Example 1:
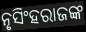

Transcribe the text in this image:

ନୃସିଂହରାଜଙ୍କ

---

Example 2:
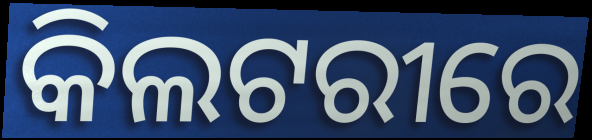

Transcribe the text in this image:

କିଲଟରୀରେ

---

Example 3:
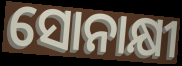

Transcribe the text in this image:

ସୋନାକ୍ଷୀ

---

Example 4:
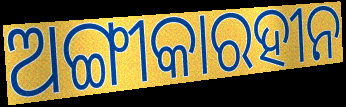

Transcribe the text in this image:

ଅଙ୍ଗୀକାରହୀନ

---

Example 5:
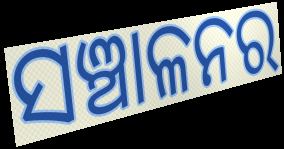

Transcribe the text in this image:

ସଞ୍ଚାଳନର